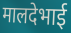
मालदेभाई